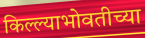
किल्ल्याभोवतीच्या